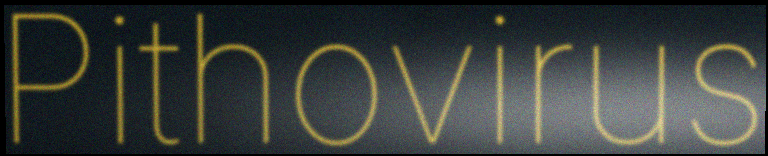
Pithovirus